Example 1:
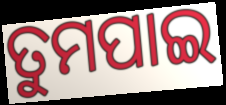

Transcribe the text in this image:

ତୁମପାଇ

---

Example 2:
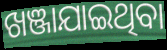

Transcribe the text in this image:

ଖଞ୍ଜାଯାଇଥିବା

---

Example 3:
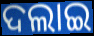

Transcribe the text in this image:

ଦଲାଇ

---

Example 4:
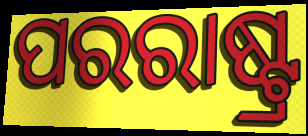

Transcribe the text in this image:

ପରରାଷ୍ଟ୍ର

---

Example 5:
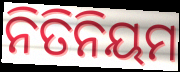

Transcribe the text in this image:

ନିତିନିୟମ